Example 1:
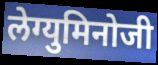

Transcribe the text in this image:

लेग्युमिनोजी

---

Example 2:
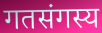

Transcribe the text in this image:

गतसंगस्य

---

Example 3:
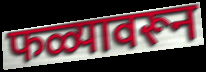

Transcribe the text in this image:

फळ्यावरून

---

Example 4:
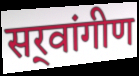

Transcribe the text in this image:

सर्वांगीण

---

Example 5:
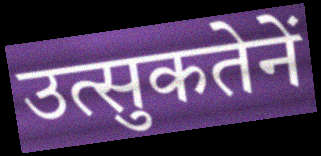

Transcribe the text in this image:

उत्सुकतेनें